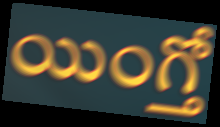
యింగ్తో